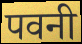
पवनी